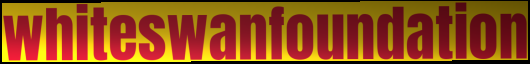
whiteswanfoundation